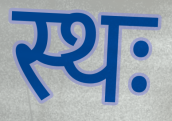
स्थः